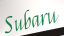
Subaru